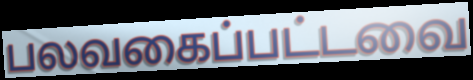
பலவகைப்பட்டவை